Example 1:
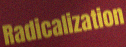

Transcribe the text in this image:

Radicalization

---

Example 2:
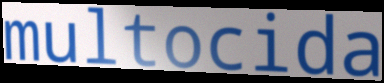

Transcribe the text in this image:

multocida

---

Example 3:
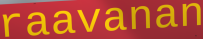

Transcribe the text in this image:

raavanan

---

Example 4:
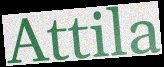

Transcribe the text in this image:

Attila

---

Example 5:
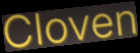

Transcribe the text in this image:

Cloven